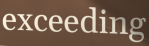
exceeding